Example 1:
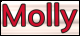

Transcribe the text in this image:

Molly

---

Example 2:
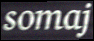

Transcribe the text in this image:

somaj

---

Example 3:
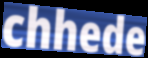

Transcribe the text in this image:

chhede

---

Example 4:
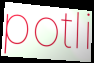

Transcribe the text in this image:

potli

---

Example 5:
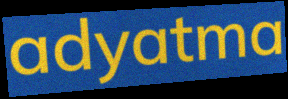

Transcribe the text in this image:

adyatma